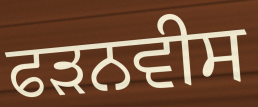
ਫੜਨਵੀਸ